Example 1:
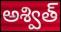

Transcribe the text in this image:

అశ్విత్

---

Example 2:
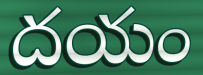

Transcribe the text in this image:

దయం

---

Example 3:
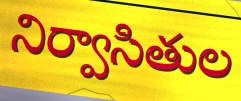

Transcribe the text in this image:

నిర్వాసితుల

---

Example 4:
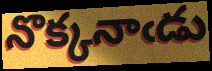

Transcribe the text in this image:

నొక్కనాఁడు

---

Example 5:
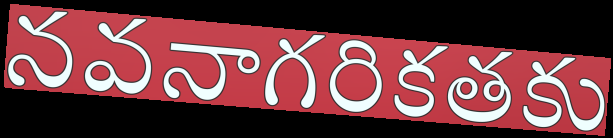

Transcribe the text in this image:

నవనాగరికతకు